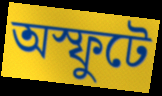
অস্ফুটে